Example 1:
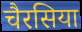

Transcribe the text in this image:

चैरसिया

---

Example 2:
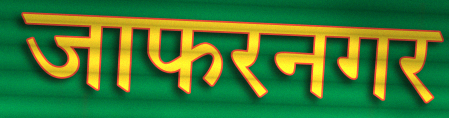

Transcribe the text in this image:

जाफरनगर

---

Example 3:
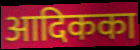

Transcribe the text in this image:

आदिकका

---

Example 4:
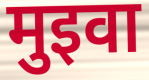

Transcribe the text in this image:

मुइवा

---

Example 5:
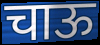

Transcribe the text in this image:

चाऊ